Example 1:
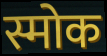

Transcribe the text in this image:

स्मोक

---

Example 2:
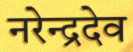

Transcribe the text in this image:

नरेन्द्रदेव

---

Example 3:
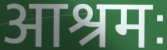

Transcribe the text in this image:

आश्रमः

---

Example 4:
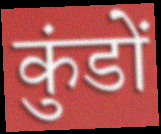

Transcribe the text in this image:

कुंडों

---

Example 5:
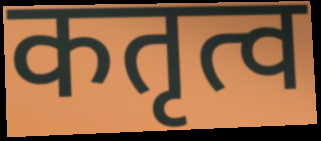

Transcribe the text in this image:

कतृत्व